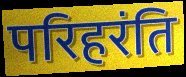
परिहरंति